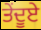
ਤੇਂਦੂਏ